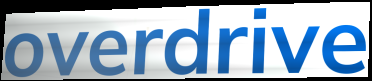
overdrive